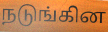
நடுங்கின